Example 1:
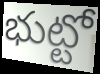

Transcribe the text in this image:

భుట్టో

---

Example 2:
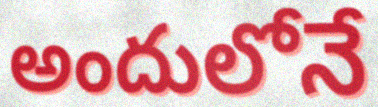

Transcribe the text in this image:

అందులోనే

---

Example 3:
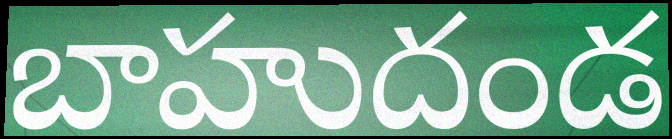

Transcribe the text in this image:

బాహుదండ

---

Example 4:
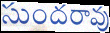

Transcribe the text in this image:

సుందరావు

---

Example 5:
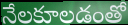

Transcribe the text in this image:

నేలకూలడంతో